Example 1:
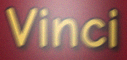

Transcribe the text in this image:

Vinci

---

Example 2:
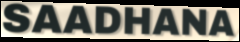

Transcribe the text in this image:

SAADHANA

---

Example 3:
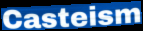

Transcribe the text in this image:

Casteism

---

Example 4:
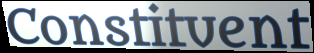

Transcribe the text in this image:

Constituent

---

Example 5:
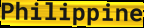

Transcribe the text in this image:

Philippine